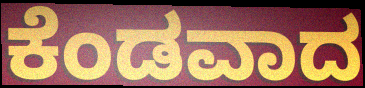
ಕೆಂಡವಾದ